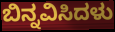
ಬಿನ್ನವಿಸಿದಳು